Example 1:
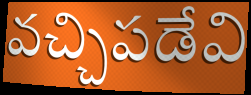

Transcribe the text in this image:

వచ్చిపడేవి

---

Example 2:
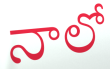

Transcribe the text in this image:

నాలో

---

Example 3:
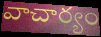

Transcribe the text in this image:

వాచార్యం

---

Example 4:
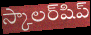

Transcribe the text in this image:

స్కాలర్‌షిప్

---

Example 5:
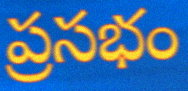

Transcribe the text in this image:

ప్రసభం